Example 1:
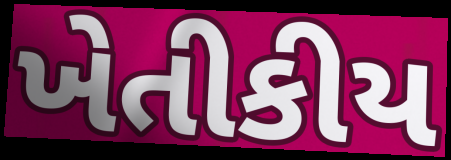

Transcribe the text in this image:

ખેતીકીય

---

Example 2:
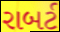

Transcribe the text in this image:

રાબર્ટ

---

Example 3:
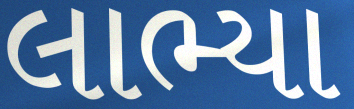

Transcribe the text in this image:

લાભ્યા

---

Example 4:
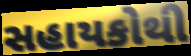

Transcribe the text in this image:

સહાયકોથી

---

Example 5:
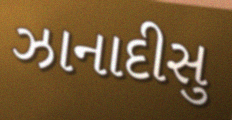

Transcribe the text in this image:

ઝાનાદીસુ